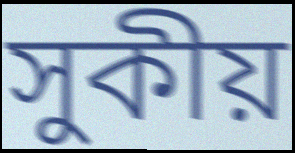
সুকীয়